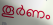
തൂർണം